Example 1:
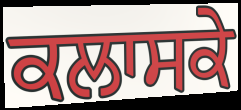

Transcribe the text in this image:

ਕਲਾਸਕੇ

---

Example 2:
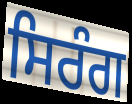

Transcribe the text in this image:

ਸਿਰੰਗ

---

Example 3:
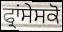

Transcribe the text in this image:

ਫ੍ਰਾਂਸੇਸਕੋ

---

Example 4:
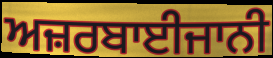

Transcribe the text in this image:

ਅਜ਼ਰਬਾਈਜਾਨੀ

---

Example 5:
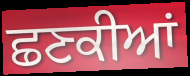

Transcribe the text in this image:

ਛਣਕੀਆਂ